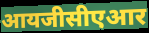
आयजीसीएआर